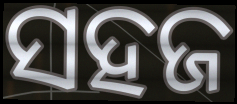
ସହଜ